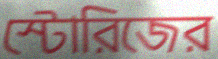
স্টোরিজের